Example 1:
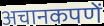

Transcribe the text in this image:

अचानकपणें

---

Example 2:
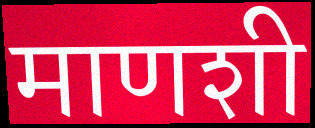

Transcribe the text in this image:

माणशी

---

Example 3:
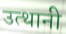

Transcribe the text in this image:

उत्थानी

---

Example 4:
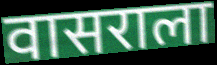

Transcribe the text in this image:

वासराला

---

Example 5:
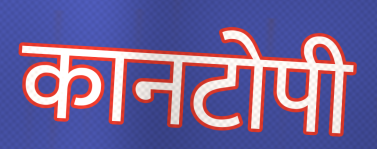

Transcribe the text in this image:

कानटोपी